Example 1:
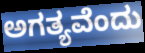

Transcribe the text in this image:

ಅಗತ್ಯವೆಂದು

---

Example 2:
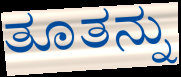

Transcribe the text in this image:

ತೂತನ್ನು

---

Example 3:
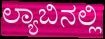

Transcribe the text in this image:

ಲ್ಯಾಬಿನಲ್ಲಿ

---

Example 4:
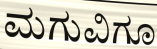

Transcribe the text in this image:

ಮಗುವಿಗೂ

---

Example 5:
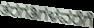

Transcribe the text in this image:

ತರಗತಿಗಳವರೆಗೆ